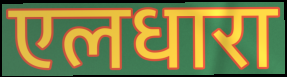
एलधारा